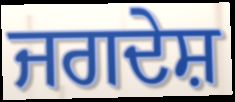
ਜਗਦੇਸ਼